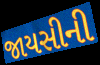
જાયસીની